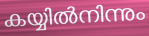
കയ്യിൽനിന്നും